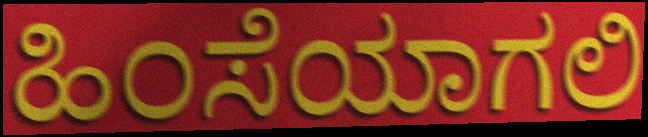
ಹಿಂಸೆಯಾಗಲಿ